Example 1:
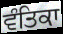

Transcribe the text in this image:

ਵੰਤਿਕਾ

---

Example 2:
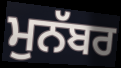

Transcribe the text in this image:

ਮੁਨੱਬਰ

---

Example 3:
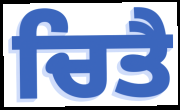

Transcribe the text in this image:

ਚਿਤੈ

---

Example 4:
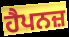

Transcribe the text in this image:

ਹੈਪਨਜ਼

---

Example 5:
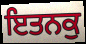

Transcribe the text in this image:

ਇਤਨਕੁ